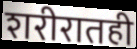
शरीरातही